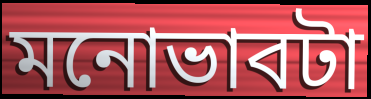
মনোভাবটা